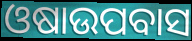
ଓଷାଉପବାସ